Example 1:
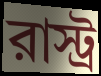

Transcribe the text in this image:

রাস্ট্র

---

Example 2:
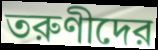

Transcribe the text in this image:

তরুণীদের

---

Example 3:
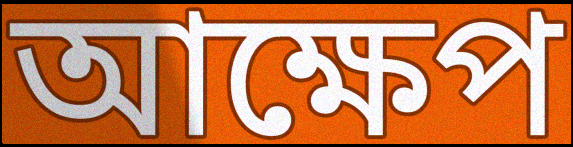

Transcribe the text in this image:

আক্ষেপ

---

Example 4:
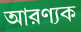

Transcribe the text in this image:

আরণ্যক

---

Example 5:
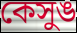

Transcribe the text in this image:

কেসুঙ